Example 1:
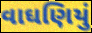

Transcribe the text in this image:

વાઘણિયું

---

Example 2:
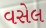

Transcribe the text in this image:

વસેલ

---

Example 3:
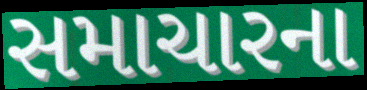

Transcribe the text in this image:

સમાચારના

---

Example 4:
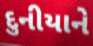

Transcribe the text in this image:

દુનીયાને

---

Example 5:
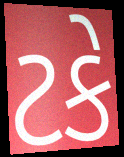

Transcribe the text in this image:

ટકે